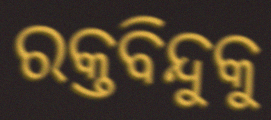
ରକ୍ତବିନ୍ଦୁକୁ